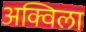
अक्विला